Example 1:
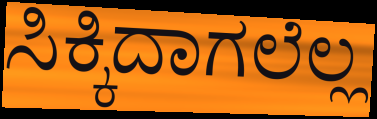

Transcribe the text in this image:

ಸಿಕ್ಕಿದಾಗಲೆಲ್ಲ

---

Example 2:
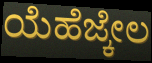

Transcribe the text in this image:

ಯೆಹೆಜ್ಕೇಲ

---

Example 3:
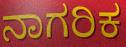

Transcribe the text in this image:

ನಾಗರಿಕ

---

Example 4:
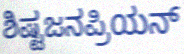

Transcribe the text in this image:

ಶಿಷ್ಟಜನಪ್ರಿಯನ್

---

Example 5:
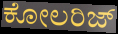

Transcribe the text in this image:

ಕೋಲರಿಜ್